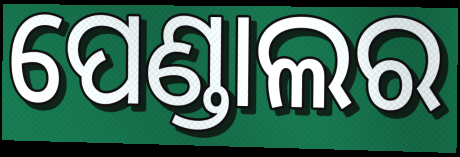
ପେଣ୍ଡାଲର